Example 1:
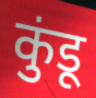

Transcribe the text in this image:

कुंडू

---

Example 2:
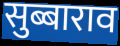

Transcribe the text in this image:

सुब्‍बाराव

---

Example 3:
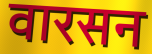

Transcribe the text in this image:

वारसन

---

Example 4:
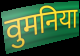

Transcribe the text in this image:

वुमनिया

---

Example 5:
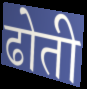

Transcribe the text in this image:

ढोती